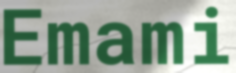
Emami